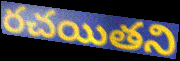
రచయితని